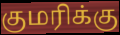
குமரிக்கு